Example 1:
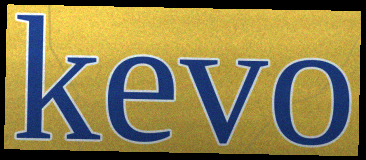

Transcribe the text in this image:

kevo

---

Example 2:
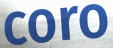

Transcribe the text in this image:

coro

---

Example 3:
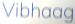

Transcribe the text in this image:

Vibhaag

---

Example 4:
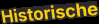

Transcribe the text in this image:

Historische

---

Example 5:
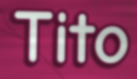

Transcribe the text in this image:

Tito